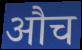
औच